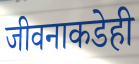
जीवनाकडेही